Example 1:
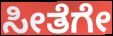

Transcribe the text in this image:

ಸೀತೆಗೇ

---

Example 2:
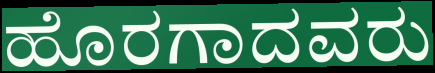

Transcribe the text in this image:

ಹೊರಗಾದವರು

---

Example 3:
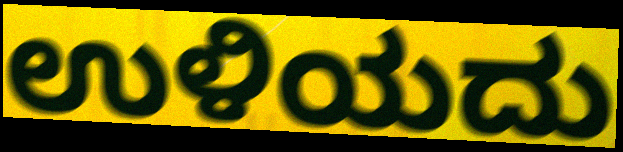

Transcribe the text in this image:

ಉಳಿಯದು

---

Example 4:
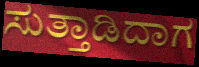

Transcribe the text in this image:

ಸುತ್ತಾಡಿದಾಗ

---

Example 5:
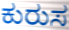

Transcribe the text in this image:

ಕುರುಸ